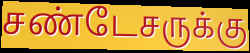
சண்டேசருக்கு